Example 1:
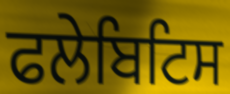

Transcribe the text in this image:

ਫਲੇਬਿਟਿਸ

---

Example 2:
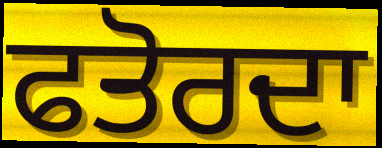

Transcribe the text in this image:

ਫਤੋਰਦਾ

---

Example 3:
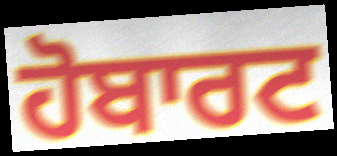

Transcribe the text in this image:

ਹੋਬਾਰਟ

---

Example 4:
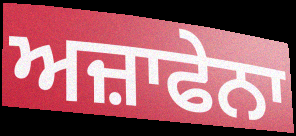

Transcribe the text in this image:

ਅਜ਼ਾਫੇਨਾ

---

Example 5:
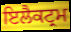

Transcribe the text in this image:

ਇਲੈਕਟ੍ਰਮ